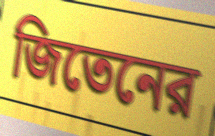
জিতেনের